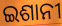
ଇଶାନୀ